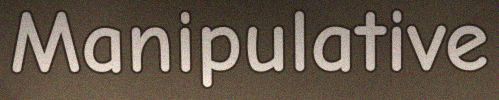
Manipulative